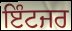
ਇੰਟਜਰ